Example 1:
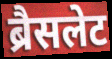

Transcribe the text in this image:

ब्रैसलेट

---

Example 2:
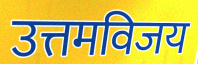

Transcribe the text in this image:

उत्तमविजय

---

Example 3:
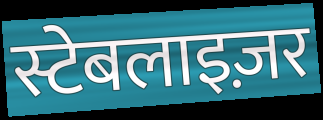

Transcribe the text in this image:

स्टेबलाइज़र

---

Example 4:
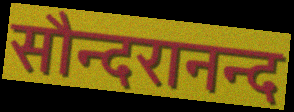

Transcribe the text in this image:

सौन्दरानन्द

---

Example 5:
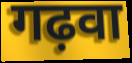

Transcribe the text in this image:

गढ़वा